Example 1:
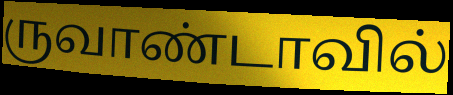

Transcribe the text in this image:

ருவாண்டாவில்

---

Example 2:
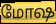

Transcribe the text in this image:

மோஷ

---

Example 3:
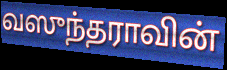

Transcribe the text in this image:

வஸுந்தராவின்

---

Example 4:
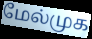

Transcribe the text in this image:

மேல்முக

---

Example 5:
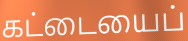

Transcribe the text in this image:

கட்டையைப்